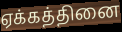
ஏக்கத்தினை